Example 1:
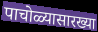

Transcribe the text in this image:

पाचोळ्यासारख्या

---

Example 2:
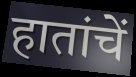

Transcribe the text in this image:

हातांचें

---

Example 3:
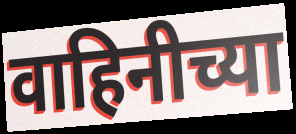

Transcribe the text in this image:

वाहिनीच्या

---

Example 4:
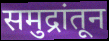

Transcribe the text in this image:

समुद्रांतून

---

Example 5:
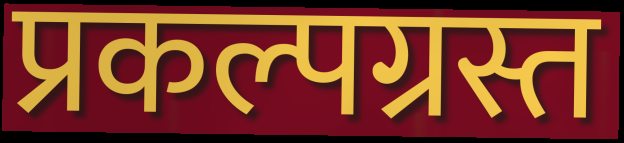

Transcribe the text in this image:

प्रकल्पग्रस्त